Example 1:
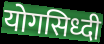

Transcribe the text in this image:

योगसिध्दी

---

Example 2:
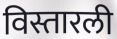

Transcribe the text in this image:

विस्तारली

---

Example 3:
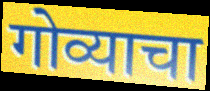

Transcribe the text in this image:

गोव्याचा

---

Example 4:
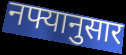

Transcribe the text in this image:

नफ्यानुसार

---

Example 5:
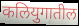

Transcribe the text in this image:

कलियुगातील